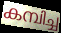
കമ്പിച്ച